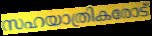
സഹയാത്രികരോട്